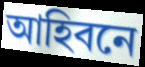
আহিবনে